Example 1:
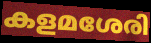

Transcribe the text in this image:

കളമശേരി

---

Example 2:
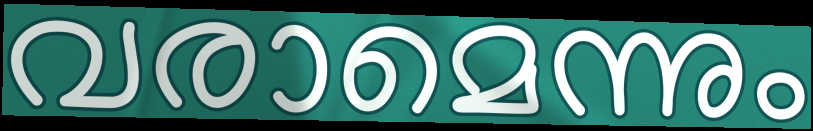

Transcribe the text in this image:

വരാമെന്നും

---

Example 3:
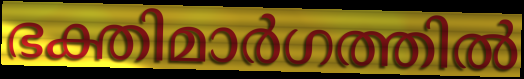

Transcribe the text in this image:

ഭക്തിമാർഗത്തിൽ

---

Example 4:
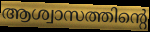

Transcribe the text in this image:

ആശ്വാസത്തിന്റെ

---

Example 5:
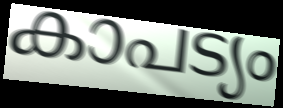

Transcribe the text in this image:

കാപട്യം